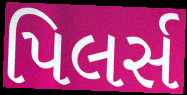
પિલર્સ